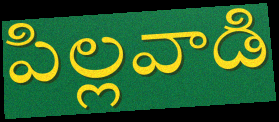
పిల్లవాడి